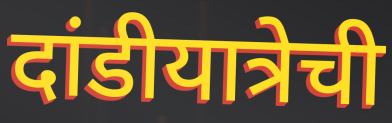
दांडीयात्रेची